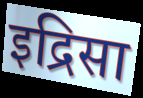
इद्रिसा